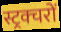
स्ट्रक्चरों